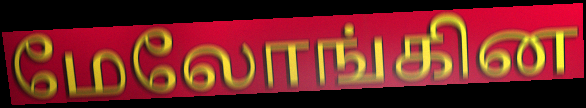
மேலோங்கின